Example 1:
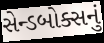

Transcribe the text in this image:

સેન્ડબોક્સનું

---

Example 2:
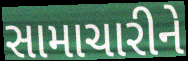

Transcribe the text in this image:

સામાચારીને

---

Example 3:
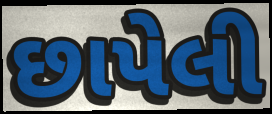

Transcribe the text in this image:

છાપેલી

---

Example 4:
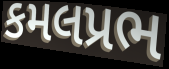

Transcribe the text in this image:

કમલપ્રભ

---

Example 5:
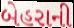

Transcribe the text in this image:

બેહરાની